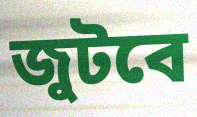
জুটবে